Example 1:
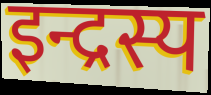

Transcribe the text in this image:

इन्द्रस्य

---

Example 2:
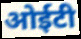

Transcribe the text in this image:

ओईटी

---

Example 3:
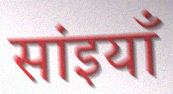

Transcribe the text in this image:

सांइयाँ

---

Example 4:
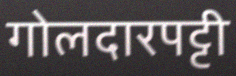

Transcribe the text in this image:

गोलदारपट्टी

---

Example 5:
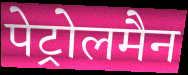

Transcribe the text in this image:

पेट्रोलमैन